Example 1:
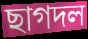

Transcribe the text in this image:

ছাগদল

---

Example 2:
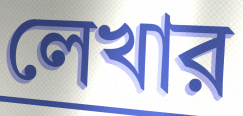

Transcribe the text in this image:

লেখার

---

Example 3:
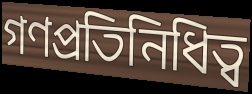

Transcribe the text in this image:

গণপ্রতিনিধিত্ব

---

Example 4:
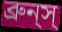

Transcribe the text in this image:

ব্রুন্‌স্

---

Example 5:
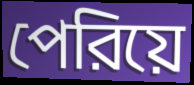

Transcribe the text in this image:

পেরিয়ে